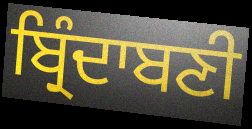
ਬ੍ਰਿੰਦਾਬਣੀ